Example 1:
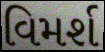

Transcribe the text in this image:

વિમર્શ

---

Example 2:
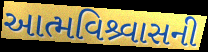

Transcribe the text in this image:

આત્મવિશ્ર્વાસની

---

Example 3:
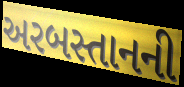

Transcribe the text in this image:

અરબસ્તાનની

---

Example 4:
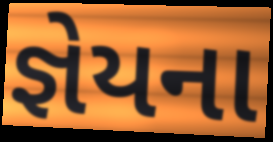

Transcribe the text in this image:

જ્ઞેયના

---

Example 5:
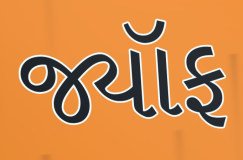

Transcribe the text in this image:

જ્યૉફ